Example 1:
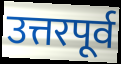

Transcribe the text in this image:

उत्तरपूर्व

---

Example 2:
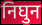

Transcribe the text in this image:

निघुन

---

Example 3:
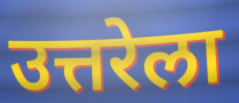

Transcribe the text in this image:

उत्तरेला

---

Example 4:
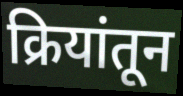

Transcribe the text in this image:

क्रियांतून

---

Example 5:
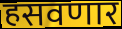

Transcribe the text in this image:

हसवणार